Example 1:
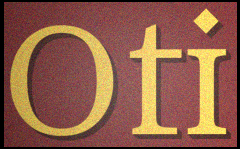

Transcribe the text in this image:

Oti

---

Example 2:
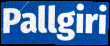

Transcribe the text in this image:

Pallgiri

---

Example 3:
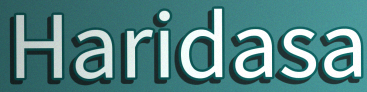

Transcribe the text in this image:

Haridasa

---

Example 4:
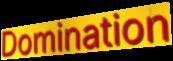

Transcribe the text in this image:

Domination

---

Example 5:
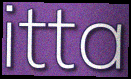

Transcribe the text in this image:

itta